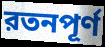
রতনপূর্ণ